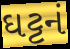
ઘટ્ટનં